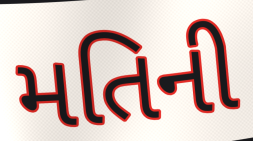
મતિની